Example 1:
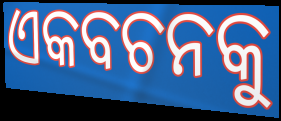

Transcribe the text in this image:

ଏକବଚନକୁ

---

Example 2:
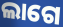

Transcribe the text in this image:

ଲାଗେ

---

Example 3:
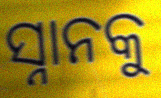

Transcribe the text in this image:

ସ୍ନାନକୁ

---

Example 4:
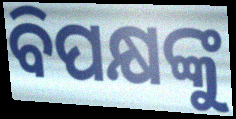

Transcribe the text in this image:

ବିପକ୍ଷଙ୍କୁ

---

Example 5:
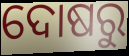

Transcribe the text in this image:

ଦୋଷରୁ